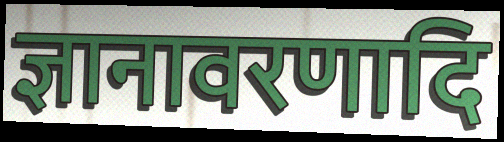
ज्ञानावरणादि